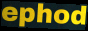
ephod